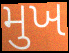
મુખ